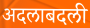
अदलाबदली